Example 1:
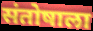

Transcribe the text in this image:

संतोषाला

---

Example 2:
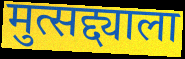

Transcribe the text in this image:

मुत्सद्द्याला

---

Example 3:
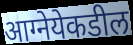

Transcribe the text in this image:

आग्नेयेकडील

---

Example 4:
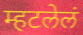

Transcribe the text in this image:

म्हटलेलं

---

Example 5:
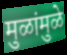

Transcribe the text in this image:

मुळांमुळे